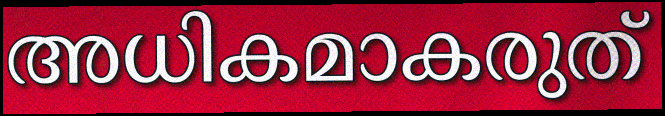
അധികമാകരുത്